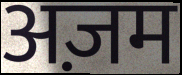
अज़म